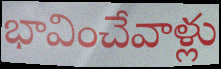
భావించేవాళ్లు